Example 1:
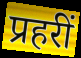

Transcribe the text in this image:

प्रहरीं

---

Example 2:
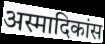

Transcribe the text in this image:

अस्मादिकांस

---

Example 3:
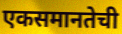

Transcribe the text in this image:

एकसमानतेची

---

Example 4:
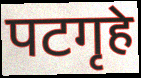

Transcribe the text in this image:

पटगृहे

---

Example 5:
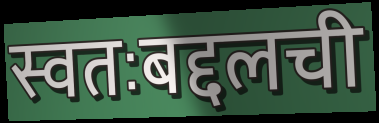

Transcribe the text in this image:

स्वतःबद्दलची